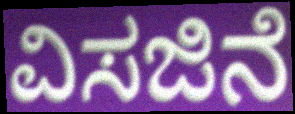
ವಿಸಜಿನೆ